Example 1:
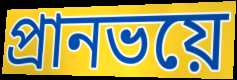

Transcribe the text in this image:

প্রানভয়ে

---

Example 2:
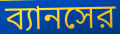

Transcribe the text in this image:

ব্যানসের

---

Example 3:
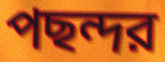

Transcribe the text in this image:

পছন্দর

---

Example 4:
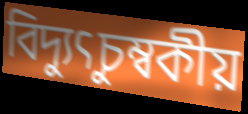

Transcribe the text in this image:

বিদ্যুৎচুম্বকীয়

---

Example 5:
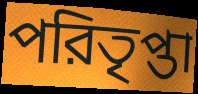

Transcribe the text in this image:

পরিতৃপ্তা